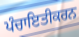
ਪੰਚਾਇਤੀਕਰਨ